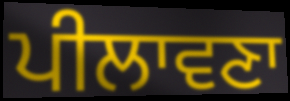
ਪੀਲਾਵਣਾ